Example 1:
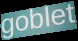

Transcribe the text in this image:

goblet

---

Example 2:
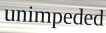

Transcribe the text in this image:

unimpeded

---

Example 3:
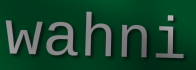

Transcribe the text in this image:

wahni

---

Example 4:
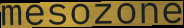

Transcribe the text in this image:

mesozone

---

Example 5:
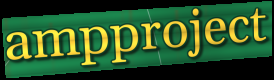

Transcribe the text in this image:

ampproject